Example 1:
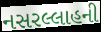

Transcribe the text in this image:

નસરલ્લાહની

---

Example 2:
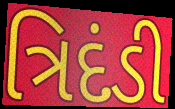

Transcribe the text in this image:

ત્રિદંડી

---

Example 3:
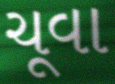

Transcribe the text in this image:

ચૂવા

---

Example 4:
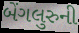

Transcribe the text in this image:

બેંગલુરુની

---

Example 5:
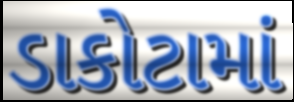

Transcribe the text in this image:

ડાકોટામાં